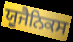
ਯੂਜੈਨਿਕਸ